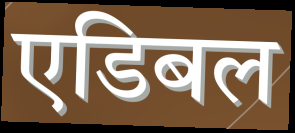
एडिबल